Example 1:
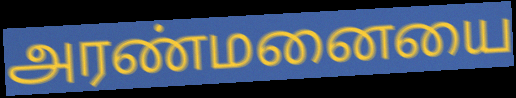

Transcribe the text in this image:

அரண்மனையை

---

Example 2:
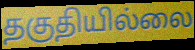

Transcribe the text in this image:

தகுதியில்லை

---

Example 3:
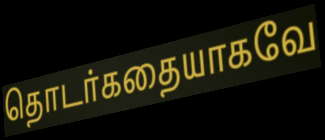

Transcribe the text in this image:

தொடர்கதையாகவே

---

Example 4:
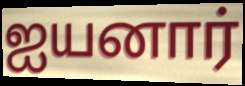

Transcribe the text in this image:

ஐயனார்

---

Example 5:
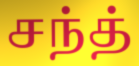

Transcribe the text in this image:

சந்த்